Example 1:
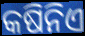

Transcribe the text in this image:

କଷିନିଏ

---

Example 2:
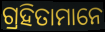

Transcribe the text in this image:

ଗ୍ରହିତାମାନେ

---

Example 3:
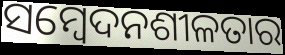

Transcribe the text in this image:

ସମ୍ୱେଦନଶୀଳତାର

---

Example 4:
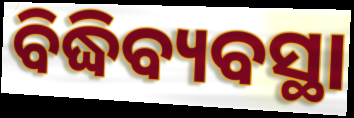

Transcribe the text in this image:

ବିଦ୍ଧିବ୍ୟବସ୍ଥା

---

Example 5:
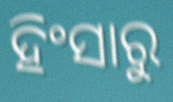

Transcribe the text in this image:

ହିଂସାରୁ